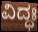
ವಿದ್ಧಃ